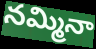
నమ్మినా